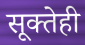
सूक्तेही